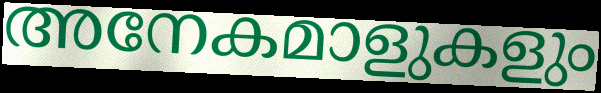
അനേകമാളുകളും